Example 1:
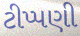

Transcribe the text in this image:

ટીપ્પણી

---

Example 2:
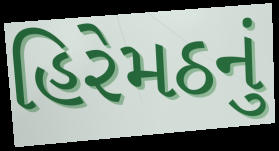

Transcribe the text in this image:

હિરેમઠનું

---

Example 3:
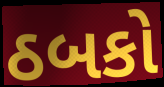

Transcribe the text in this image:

ઠબકો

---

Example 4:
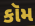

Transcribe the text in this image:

કૉમ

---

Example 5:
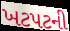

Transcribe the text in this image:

ખટપટની